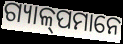
ଗ୍ୟାଳ୍‍ପମାନେ